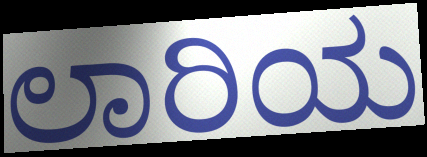
ಲಾರಿಯ